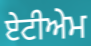
ਏਟੀਅੇਮ